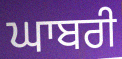
ਘਾਬਰੀ